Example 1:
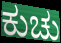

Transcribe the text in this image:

ಕುಚು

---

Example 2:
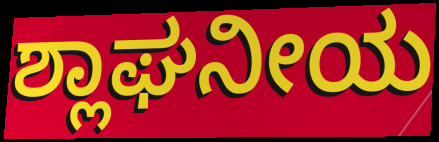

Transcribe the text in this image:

ಶ್ಲಾಘನೀಯ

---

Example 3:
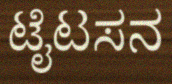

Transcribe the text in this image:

ಟೈಟಸನ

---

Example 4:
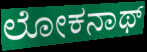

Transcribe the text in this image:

ಲೋಕನಾಥ್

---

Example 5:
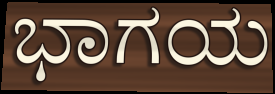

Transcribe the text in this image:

ಭಾಗಯ